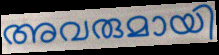
അവരുമായി